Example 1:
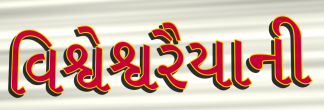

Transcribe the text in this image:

વિશ્વેશ્વરૈયાની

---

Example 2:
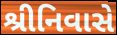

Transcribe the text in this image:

શ્રીનિવાસે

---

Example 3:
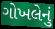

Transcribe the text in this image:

ગોખલેનું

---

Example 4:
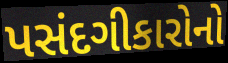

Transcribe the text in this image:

પસંદગીકારોનો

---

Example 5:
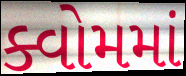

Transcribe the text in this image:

ક્વોમમાં